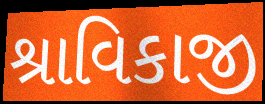
શ્રાવિકાજી